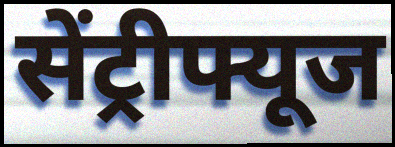
सेंट्रीफ्यूज